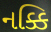
નક્કિ